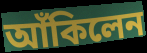
আঁকিলেন